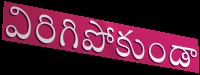
విరిగిపోకుండా